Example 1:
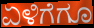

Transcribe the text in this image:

ಏಳಿಗೆಗೂ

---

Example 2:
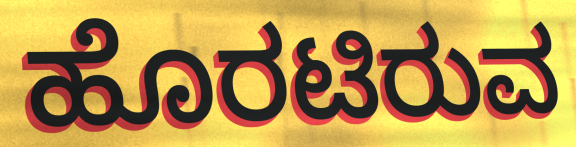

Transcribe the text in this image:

ಹೊರಟಿರುವ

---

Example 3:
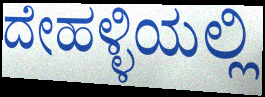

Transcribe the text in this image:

ದೇಹಳ್ಳಿಯಲ್ಲಿ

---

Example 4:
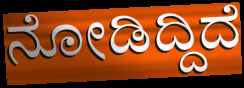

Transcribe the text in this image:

ನೋಡಿದ್ದಿದೆ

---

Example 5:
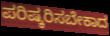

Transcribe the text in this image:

ಪರಿಷ್ಕರಿಸಬೇಕಾದ